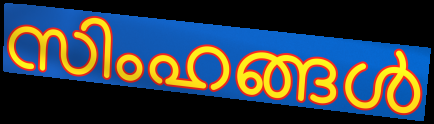
സിംഹങ്ങൾ